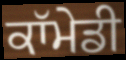
ਕਾੱਮੇਡੀ